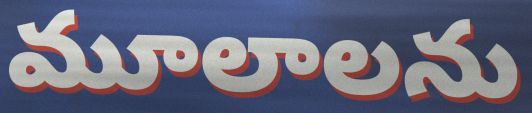
మూలాలను